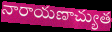
నారాయణాచ్యుత